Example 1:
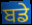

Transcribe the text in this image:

ਬਡੇ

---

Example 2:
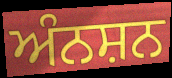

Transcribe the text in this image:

ਅੰਨਸ਼ਨ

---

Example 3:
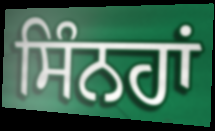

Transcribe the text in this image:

ਸਿੰਨਹਾਂ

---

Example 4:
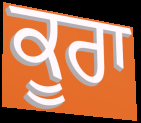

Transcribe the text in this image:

ਕੂਰਾ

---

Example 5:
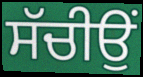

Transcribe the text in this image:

ਸੱਚੀਉਂ